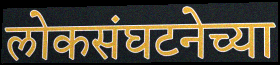
लोकसंघटनेच्या